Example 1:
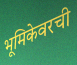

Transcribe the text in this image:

भूमिकेवरची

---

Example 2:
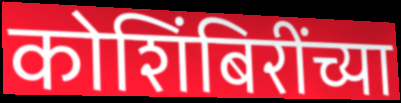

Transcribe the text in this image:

कोशिंबिरींच्या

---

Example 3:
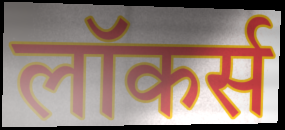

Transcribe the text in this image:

लॉकर्स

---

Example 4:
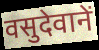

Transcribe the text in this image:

वसुदेवानें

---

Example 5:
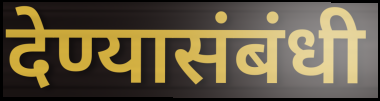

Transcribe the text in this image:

देण्यासंबंधी